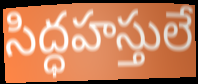
సిద్ధహస్తులే